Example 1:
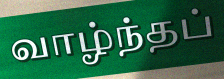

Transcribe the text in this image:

வாழ்ந்தப்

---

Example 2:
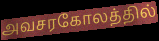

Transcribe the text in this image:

அவசரகோலத்தில்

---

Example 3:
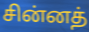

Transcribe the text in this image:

சின்னத்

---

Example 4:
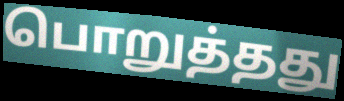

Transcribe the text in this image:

பொறுத்தது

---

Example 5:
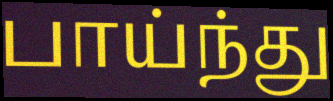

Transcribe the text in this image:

பாய்ந்து